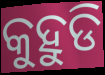
କୁହୁଡି